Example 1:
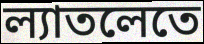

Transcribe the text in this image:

ল্যাতলেতে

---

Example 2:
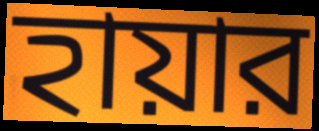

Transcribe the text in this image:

হায়ার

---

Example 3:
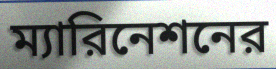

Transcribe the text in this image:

ম্যারিনেশনের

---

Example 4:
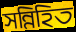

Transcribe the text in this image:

সন্নিহিত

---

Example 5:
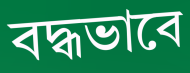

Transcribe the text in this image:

বদ্ধভাবে